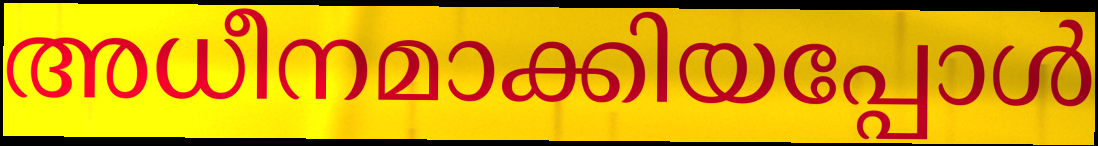
അധീനമാക്കിയപ്പോൾ